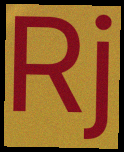
Rj